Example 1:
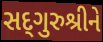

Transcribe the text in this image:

સદ્‌ગુરુશ્રીને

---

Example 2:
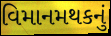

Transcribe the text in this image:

વિમાનમથકનું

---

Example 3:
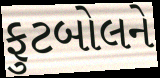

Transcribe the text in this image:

ફુટબોલને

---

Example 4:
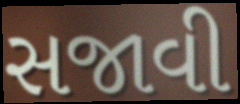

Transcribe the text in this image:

સજાવી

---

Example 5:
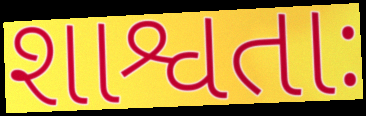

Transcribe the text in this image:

શાશ્વતાઃ